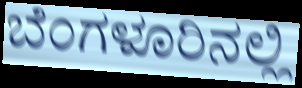
ಬೆಂಗಳೂರಿನಲ್ಲಿ